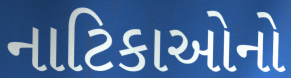
નાટિકાઓનો